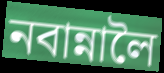
নবান্নালৈ